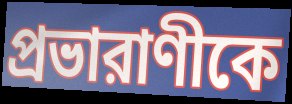
প্রভারাণীকে